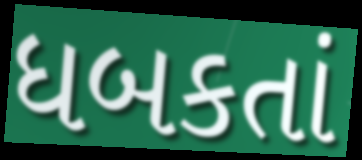
ધબકતાં